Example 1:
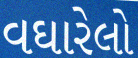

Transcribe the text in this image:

વઘારેલો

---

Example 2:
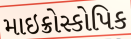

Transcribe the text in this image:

માઇક્રોસ્કોપિક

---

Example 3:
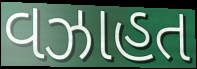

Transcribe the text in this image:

વઝાહત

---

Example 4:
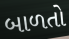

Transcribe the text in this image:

બાળતો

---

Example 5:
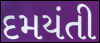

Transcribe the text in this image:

દમયંતી